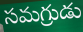
సమగ్రుడు